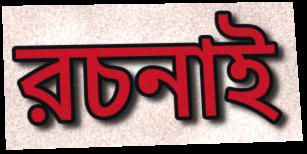
রচনাই